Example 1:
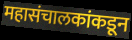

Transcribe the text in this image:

महासंचालकांकडून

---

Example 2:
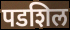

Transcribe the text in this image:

पडशिल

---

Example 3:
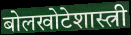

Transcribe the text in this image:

बोलखोटेशास्त्री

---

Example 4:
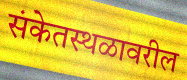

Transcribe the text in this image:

संकेतस्थळावरील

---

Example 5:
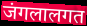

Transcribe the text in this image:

जंगलालगत